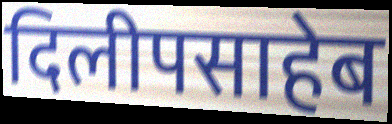
दिलीपसाहेब